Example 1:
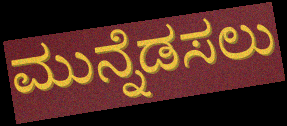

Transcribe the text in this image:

ಮುನ್ನೆಡಸಲು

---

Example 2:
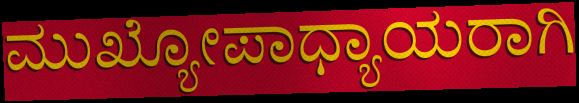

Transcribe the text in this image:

ಮುಖ್ಯೋಪಾಧ್ಯಾಯರಾಗಿ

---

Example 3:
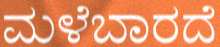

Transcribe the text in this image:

ಮಳೆಬಾರದೆ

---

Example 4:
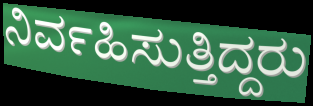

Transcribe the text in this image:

ನಿರ್ವಹಿಸುತ್ತಿದ್ದರು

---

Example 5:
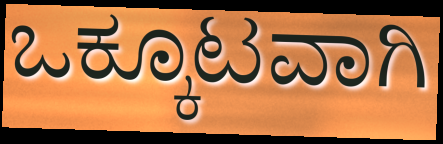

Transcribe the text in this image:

ಒಕ್ಕೂಟವಾಗಿ